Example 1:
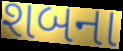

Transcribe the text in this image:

શબના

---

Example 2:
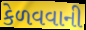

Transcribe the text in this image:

કેળવવાની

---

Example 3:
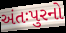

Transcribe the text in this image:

અંતઃપુરનો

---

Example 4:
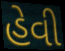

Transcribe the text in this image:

હેવી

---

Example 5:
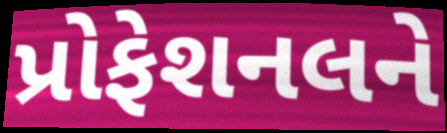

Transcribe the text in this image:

પ્રોફેશનલને